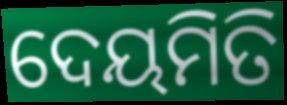
ଦେୟମିତି